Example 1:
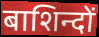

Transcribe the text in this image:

बाशिन्दों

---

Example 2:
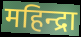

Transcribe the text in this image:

महिन्द्रा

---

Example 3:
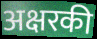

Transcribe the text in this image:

अक्षरकी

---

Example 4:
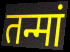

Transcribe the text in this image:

तन्मां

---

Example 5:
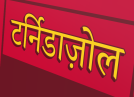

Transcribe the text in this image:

टर्निडाज़ोल